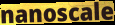
nanoscale